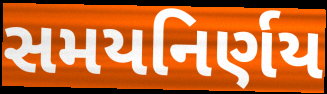
સમયનિર્ણય